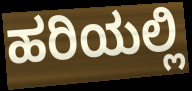
ಹರಿಯಲ್ಲಿ